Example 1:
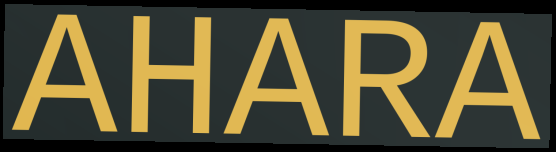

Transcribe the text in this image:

AHARA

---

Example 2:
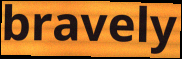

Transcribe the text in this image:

bravely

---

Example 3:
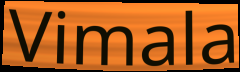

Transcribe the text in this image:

Vimala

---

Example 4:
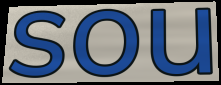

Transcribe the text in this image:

sou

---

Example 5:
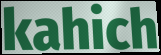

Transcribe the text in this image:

kahich